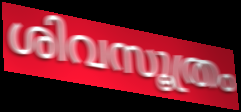
ശിവസൂത്രം